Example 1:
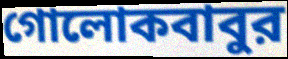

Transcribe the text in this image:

গোলোকবাবুর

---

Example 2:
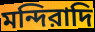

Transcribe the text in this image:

মন্দিরাদি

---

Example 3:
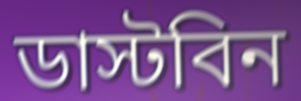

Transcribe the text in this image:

ডাস্টবিন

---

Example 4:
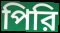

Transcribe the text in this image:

পিরি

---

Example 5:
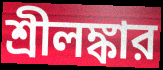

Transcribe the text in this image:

শ্রীলঙ্কার